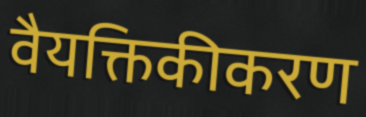
वैयक्तिकीकरण